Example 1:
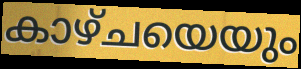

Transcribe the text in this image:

കാഴ്ചയെയും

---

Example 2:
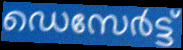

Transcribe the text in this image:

ഡെസേർട്ട്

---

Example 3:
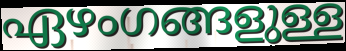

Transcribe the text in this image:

ഏഴംഗങ്ങളുള്ള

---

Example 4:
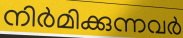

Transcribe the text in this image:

നിർമിക്കുന്നവർ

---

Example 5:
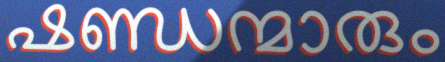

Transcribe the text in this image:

ഷണ്ഡന്മാരും